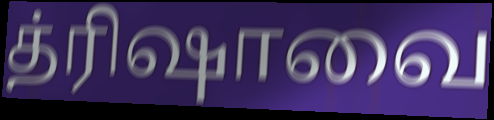
த்ரிஷாவை